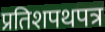
प्रतिशपथपत्र